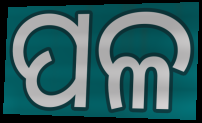
ପଳ